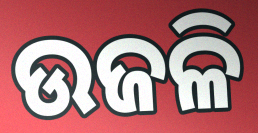
ଉଜଳି